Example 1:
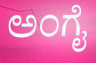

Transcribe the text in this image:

ಅಂಗೈ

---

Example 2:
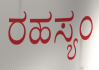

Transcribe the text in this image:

ರಹಸ್ಯಂ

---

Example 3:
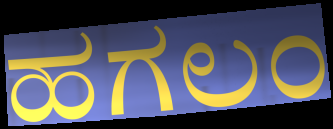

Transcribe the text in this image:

ಹಗಲಂ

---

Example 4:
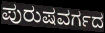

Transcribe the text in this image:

ಪುರುಷವರ್ಗದ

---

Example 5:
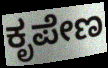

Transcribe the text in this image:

ಕೃಪೇಣ